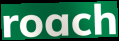
roach